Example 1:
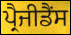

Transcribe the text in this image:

ਪ੍ਰੈਜੀਡੈਂਸ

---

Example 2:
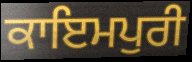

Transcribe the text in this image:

ਕਾਇਮਪੁਰੀ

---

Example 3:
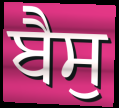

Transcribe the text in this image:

ਬੈਸੁ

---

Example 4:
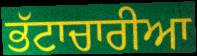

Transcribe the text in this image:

ਭੱਟਾਚਾਰੀਆ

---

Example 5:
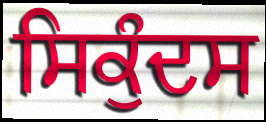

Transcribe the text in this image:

ਸਿਕੁੰਦਸ